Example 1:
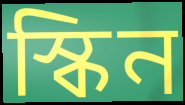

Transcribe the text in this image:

স্কিন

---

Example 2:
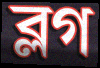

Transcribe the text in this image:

ব্লগ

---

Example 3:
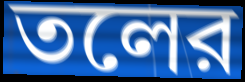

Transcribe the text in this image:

তলের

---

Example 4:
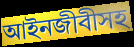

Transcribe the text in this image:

আইনজীবীসহ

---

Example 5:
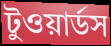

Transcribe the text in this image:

টুওয়ার্ডস